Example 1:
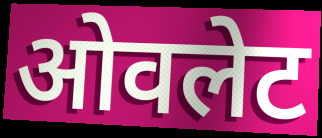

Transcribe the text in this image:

ओवलेट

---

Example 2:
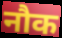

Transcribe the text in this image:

नौक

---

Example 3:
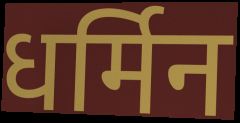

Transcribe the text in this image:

धर्मिन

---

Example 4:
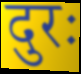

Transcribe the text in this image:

दुरः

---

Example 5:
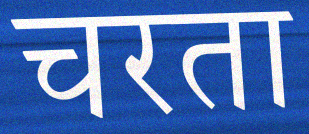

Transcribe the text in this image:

चरता